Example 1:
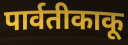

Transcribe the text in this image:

पार्वतीकाकू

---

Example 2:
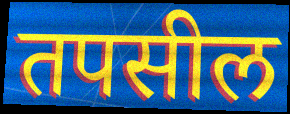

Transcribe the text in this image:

तपसील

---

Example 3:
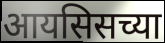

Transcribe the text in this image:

आयसिसच्या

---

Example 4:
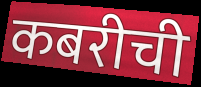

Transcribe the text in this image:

कबरीची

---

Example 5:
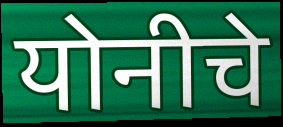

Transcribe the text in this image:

योनीचे